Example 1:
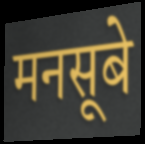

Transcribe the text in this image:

मनसूबे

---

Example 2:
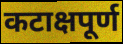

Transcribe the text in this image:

कटाक्षपूर्ण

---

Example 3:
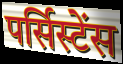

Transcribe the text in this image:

पर्सिस्टेंस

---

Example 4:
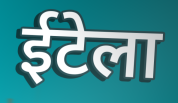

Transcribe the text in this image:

ईटेला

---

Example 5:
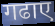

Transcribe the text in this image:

गढाए